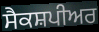
ਸੈਕਸ਼ਪੀਅਰ